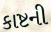
કાષ્ટની